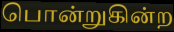
பொன்றுகின்ற